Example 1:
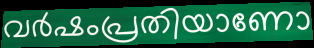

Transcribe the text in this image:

വർഷംപ്രതിയാണോ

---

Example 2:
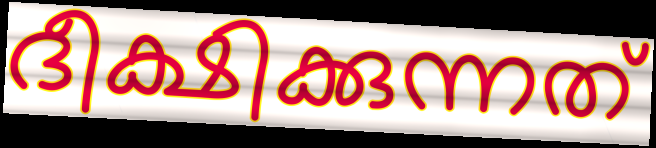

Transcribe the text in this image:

ദീക്ഷിക്കുന്നത്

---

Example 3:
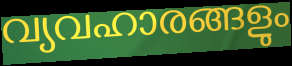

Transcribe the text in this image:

വ്യവഹാരങ്ങളും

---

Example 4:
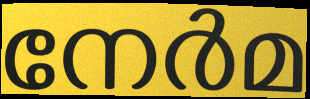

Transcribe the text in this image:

നേർമ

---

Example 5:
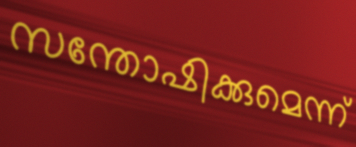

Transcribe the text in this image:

സന്തോഷിക്കുമെന്ന്